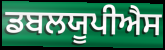
ਡਬਲਯੂਪੀਐਸ